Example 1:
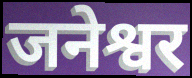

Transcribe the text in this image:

जनेश्वर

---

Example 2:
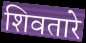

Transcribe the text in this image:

शिवतारे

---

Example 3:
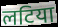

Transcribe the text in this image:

लटिया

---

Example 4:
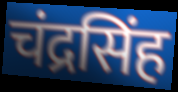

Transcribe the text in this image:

चंद्रसिंह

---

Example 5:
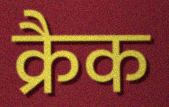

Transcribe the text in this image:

क्रैक